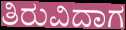
ತಿರುವಿದಾಗ